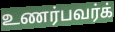
உணர்பவர்க்